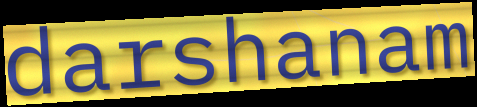
darshanam